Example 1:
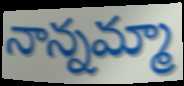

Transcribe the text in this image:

నాన్నమ్మా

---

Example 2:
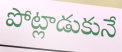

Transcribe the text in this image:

పోట్లాడుకునే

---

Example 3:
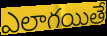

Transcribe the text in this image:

ఎలాగయితే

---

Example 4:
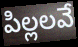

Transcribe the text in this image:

పిల్లలవే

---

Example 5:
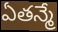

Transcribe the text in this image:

ఏతన్మే